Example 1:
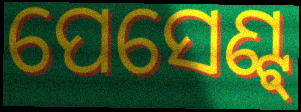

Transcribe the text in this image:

ପେସେଣ୍ଟ୍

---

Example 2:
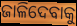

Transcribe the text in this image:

ଜାଳିଦେବାକୁ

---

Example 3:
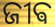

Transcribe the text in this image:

ଜୀଵ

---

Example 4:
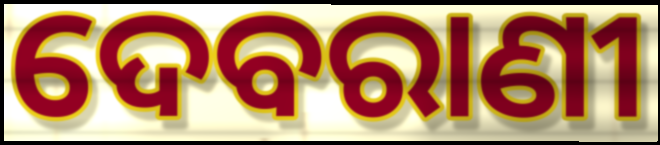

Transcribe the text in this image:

ଦେବରାଣୀ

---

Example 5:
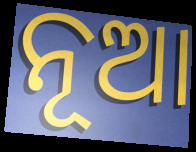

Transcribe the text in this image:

ନୂଆ